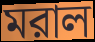
মরাল